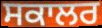
ਸਕਾਲਰ